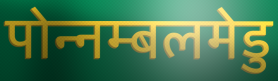
पोन्नम्बलमेडु